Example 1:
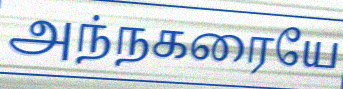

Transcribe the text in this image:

அந்நகரையே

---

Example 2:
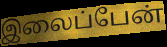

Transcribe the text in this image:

இலைப்பேன்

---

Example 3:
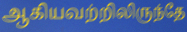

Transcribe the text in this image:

ஆகியவற்றிலிருந்தே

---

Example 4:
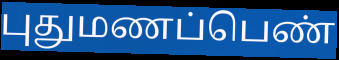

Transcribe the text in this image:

புதுமணப்பெண்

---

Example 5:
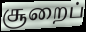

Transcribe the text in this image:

சூறைப்